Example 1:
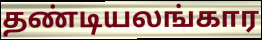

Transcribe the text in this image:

தண்டியலங்கார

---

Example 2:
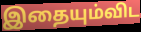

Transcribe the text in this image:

இதையும்விட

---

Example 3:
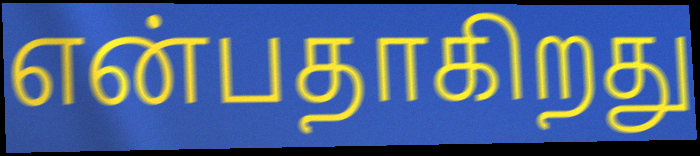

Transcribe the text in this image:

என்பதாகிறது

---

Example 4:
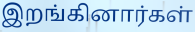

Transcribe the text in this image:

இறங்கினார்கள்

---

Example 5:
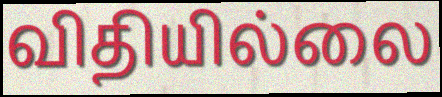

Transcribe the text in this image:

விதியில்லை